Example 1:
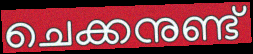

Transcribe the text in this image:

ചെക്കനുണ്ട്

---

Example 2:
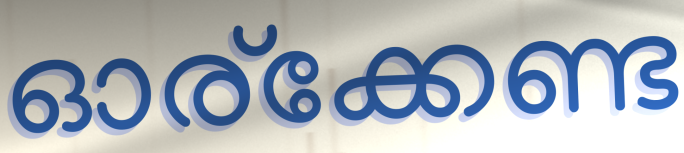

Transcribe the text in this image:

ഓര്ക്കേണ്ട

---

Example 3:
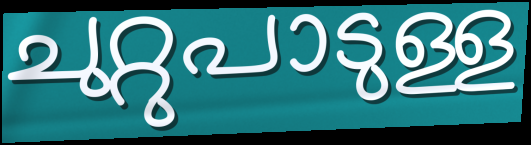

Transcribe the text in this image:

ചുറ്റുപാടുള്ള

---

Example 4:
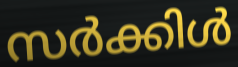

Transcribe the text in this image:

സർക്കിൾ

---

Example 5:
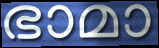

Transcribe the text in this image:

ഭാമാ